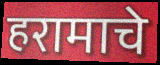
हरामाचे